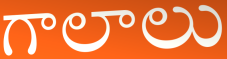
గాలాలు